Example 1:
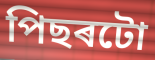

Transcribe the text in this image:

পিছৰটো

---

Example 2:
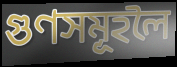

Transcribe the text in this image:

গুণসমূহলৈ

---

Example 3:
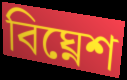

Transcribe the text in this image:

বিঘ্নেশ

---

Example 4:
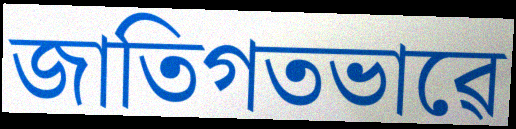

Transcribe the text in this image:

জাতিগতভাৱে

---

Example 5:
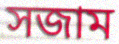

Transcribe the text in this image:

সজাম